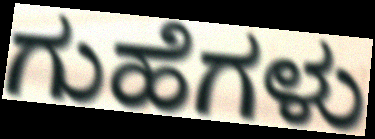
ಗುಹೆಗಳು